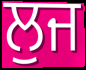
ਲੁਜ